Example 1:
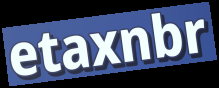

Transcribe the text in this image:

etaxnbr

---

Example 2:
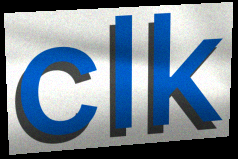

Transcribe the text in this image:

clk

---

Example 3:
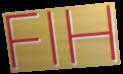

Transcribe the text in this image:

FIH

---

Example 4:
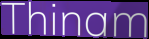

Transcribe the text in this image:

Thinam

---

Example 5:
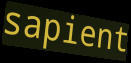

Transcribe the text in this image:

sapient